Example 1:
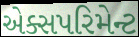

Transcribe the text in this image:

એક્સપરિમેન્ટ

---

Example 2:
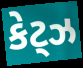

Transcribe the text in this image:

કેટ્ઝ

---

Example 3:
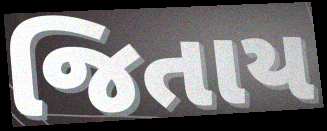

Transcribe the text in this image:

જિતાય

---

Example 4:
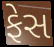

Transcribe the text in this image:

ફેસ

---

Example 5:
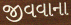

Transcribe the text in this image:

જીવવાના